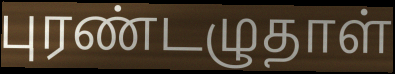
புரண்டழுதாள்